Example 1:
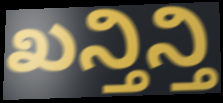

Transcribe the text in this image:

ಖನ್ತಿನ್ತಿ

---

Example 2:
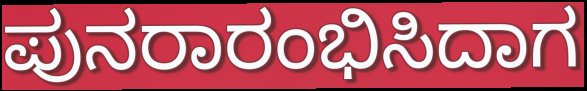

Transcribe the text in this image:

ಪುನರಾರಂಭಿಸಿದಾಗ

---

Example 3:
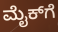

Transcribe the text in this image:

ಮೈಕ್‌ಗೆ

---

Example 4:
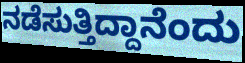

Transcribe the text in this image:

ನಡೆಸುತ್ತಿದ್ದಾನೆಂದು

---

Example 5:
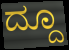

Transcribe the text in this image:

ದ್ದೂ